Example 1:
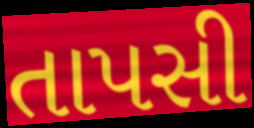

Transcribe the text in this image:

તાપસી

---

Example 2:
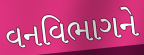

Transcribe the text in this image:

વનવિભાગને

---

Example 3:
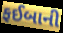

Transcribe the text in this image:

ફઈબાની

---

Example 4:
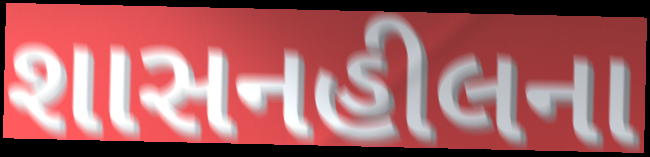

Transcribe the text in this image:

શાસનહીલના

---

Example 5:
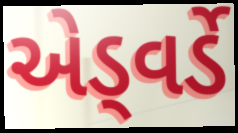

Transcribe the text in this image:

એડ્વર્ડે